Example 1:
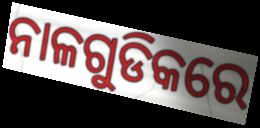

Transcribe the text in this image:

ନାଳଗୁଡିକରେ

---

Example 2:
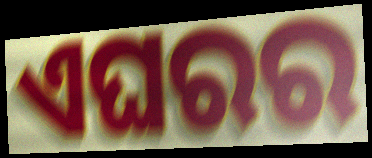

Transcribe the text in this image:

ଏଘରର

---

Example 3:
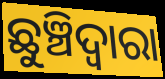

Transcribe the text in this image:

ଛୁଞ୍ଚିଦ୍ଵାରା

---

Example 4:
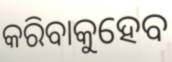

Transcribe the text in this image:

କରିବାକୁହେବ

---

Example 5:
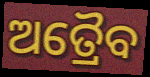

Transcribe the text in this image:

ଅତ୍ରୈବ